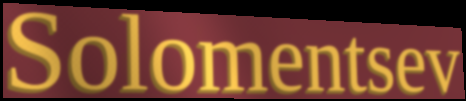
Solomentsev